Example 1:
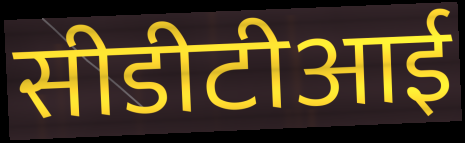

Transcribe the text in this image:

सीडीटीआई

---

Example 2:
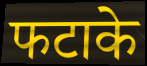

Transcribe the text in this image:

फटाके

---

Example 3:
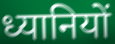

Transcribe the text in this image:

ध्यानियों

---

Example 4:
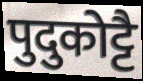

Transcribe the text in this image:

पुदुकोट्टै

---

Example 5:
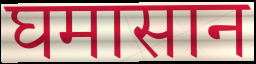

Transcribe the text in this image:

घमासान